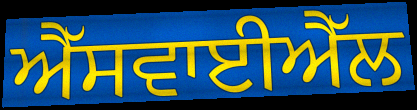
ਐੱਸਵਾਈਐੱਲ